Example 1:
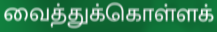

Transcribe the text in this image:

வைத்துக்கொள்ளக்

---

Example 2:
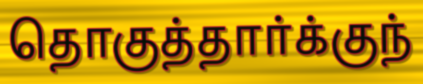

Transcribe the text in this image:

தொகுத்தார்க்குந்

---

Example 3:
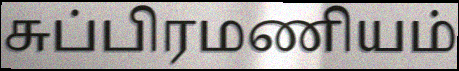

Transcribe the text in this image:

சுப்பிரமணியம்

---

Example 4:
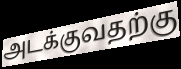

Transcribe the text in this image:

அடக்குவதற்கு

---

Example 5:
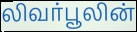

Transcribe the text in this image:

லிவர்பூலின்